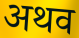
अथव